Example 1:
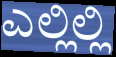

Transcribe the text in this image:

ಎಲ್ಲಿಲ್ಲಿ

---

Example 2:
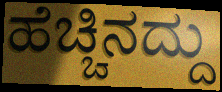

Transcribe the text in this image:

ಹೆಚ್ಚಿನದ್ದು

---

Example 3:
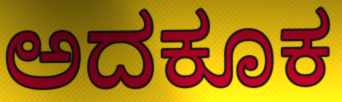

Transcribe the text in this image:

ಅದಕೂಕ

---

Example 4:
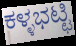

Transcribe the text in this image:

ಕಳ್ಳಭಟ್ಟಿ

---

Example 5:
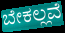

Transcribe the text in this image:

ಬೇಕಲ್ಲವೆ